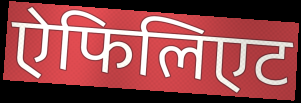
ऐफिलिएट